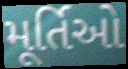
મૂર્તિઓ